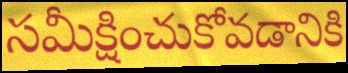
సమీక్షించుకోవడానికి